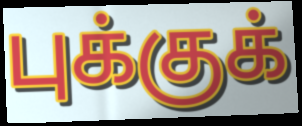
புக்குக்